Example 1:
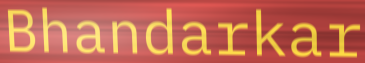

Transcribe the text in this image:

Bhandarkar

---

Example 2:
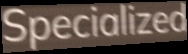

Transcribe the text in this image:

Specialized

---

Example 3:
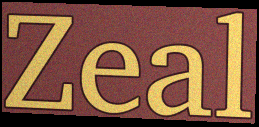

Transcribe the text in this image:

Zeal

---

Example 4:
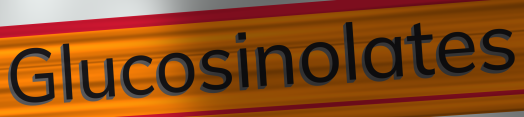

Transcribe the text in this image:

Glucosinolates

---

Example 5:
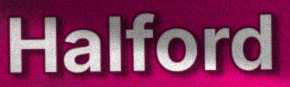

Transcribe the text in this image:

Halford